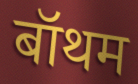
बॉथम